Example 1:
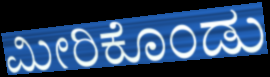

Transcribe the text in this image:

ಮೀರಿಕೊಂಡು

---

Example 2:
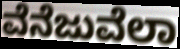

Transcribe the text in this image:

ವೆನೆಜುವೆಲಾ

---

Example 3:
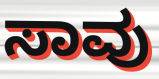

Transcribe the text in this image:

ಸಾವು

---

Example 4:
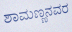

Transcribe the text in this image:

ಶಾಮಣ್ಣನವರ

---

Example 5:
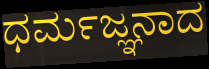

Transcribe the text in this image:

ಧರ್ಮಜ್ಞನಾದ